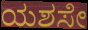
ಯಶಸೇ